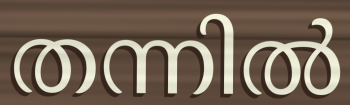
തന്നിൽ